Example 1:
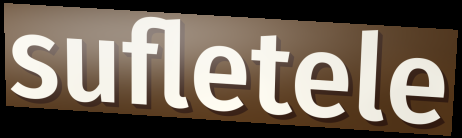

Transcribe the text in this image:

sufletele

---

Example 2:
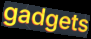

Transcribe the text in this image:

gadgets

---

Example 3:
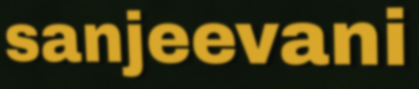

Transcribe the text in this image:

sanjeevani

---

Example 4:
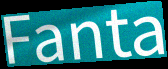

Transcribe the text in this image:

Fanta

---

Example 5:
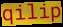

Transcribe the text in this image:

qilip